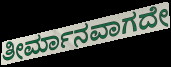
ತೀರ್ಮಾನವಾಗದೇ